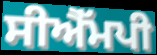
ਸੀਐੱਮਪੀ